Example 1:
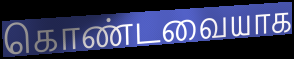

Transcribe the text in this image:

கொண்டவையாக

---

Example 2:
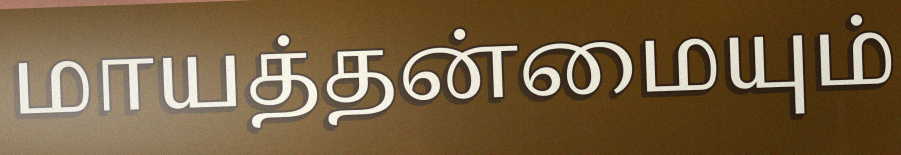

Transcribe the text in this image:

மாயத்தன்மையும்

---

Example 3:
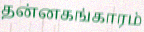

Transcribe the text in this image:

தன்னகங்காரம்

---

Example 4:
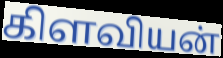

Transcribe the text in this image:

கிளவியன்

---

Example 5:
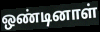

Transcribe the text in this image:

ஒண்டினாள்